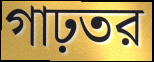
গাঢ়তর